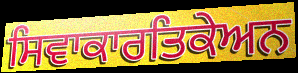
ਸਿਵਾਕਾਰਤਿਕੇਅਨ